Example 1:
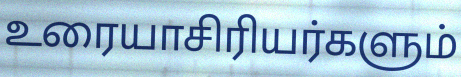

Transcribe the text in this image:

உரையாசிரியர்களும்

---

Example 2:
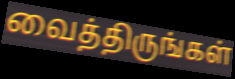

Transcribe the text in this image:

வைத்திருங்கள்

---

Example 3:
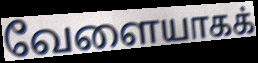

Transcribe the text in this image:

வேளையாகக்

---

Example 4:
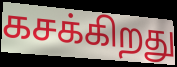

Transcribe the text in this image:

கசக்கிறது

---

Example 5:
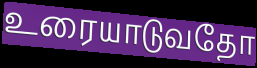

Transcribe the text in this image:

உரையாடுவதோ